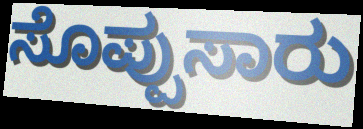
ಸೊಪ್ಪುಸಾರು